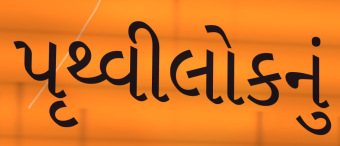
પૃથ્વીલોકનું